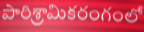
పారిశ్రామికరంగంలో